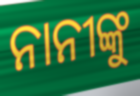
ନାନୀଙ୍କୁ